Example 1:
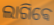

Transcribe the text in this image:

ଲାଗିଵେ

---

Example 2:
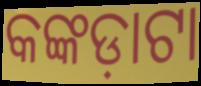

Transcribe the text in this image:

କଙ୍କଡ଼ାଟା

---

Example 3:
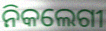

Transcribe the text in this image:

ନିକଲେଗୀ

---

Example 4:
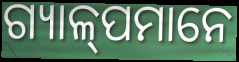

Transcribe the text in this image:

ଗ୍ୟାଳ୍‍ପମାନେ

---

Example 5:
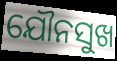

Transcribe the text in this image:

ଯୌନସୁଖ